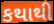
કથાથી